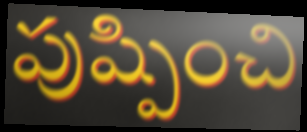
పుష్పించి